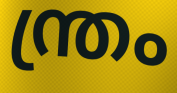
ന്ത്രം